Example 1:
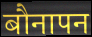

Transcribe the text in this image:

बौनापन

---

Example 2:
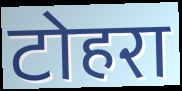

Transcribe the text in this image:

टोहरा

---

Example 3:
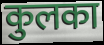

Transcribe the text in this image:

कुलका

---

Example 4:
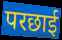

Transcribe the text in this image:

परछाई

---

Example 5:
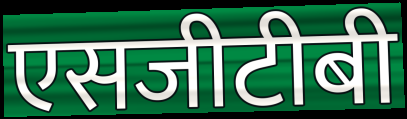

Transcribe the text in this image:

एसजीटीबी